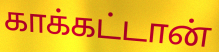
காக்கட்டான்